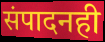
संपादनही